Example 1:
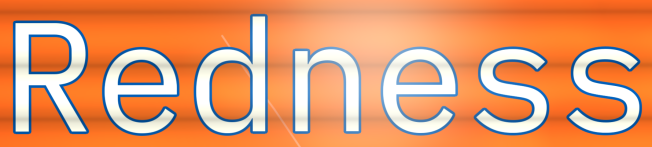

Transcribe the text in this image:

Redness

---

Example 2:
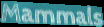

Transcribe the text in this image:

Mammals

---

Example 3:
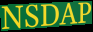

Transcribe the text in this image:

NSDAP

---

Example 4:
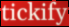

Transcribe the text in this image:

tickify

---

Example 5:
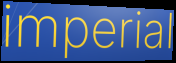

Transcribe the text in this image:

imperial